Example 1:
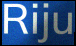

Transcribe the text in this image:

Riju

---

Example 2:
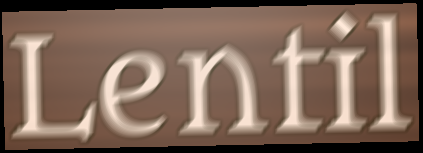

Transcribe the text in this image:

Lentil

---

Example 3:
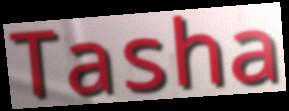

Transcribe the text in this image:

Tasha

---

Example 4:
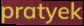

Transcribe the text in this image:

pratyek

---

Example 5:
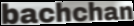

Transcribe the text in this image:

bachchan